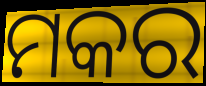
ମକର